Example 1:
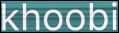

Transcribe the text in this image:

khoobi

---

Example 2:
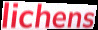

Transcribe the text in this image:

lichens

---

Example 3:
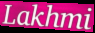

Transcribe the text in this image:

Lakhmi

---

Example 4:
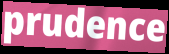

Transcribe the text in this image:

prudence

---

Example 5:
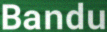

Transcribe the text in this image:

Bandu